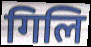
गिलि